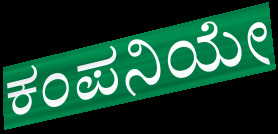
ಕಂಪನಿಯೇ